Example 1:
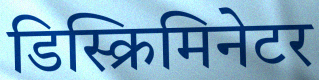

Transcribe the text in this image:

डिस्क्रिमिनेटर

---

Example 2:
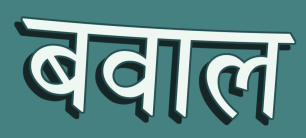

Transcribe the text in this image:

बवाल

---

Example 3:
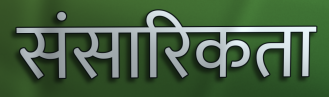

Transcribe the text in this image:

संसारिकता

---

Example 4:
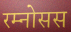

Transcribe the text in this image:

रम्नोसस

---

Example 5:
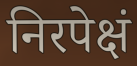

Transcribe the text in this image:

निरपेक्षं